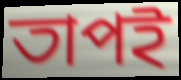
তাপই